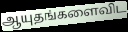
ஆயுதங்களைவிட